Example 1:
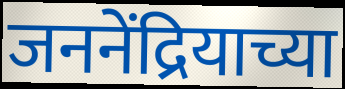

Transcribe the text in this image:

जननेंद्रियाच्या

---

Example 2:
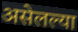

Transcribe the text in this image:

असेलल्या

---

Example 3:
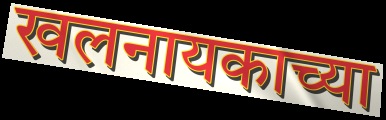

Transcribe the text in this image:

खलनायकाच्या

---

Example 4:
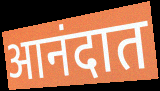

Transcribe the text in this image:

आनंदात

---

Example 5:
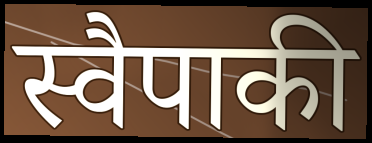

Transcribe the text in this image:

स्वैपाकी